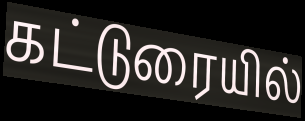
கட்டுரையில்